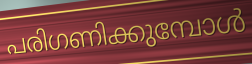
പരിഗണിക്കുമ്പോൾ